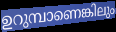
ഉറുമ്പാണെങ്കിലും